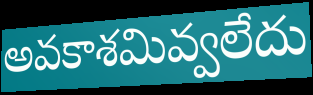
అవకాశమివ్వలేదు